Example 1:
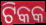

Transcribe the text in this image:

ଟିକକ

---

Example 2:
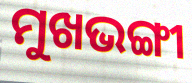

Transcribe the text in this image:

ମୁଖଭଙ୍ଗୀ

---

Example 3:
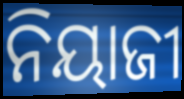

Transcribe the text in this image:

ନିୟାଜୀ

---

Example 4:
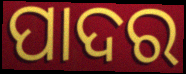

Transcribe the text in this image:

ପାଦର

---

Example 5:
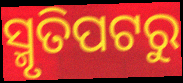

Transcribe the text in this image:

ସ୍ମୃତିପଟରୁ